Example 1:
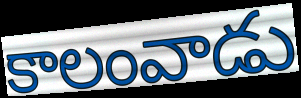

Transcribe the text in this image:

కాలంవాడు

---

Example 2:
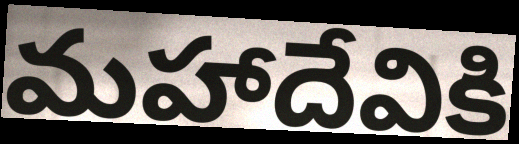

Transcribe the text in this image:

మహాదేవికి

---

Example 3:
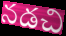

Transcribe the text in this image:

నడచి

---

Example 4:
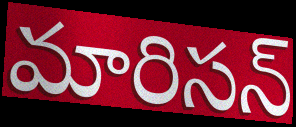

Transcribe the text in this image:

మారిసన్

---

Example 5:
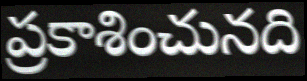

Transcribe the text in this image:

ప్రకాశించునది